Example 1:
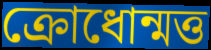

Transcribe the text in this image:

ক্রোধোন্মত্ত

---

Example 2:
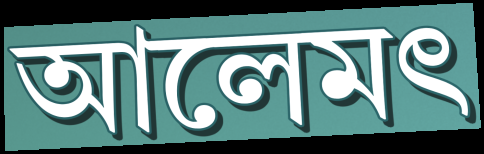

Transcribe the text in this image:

আলেমৎ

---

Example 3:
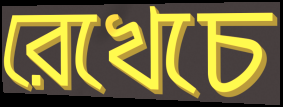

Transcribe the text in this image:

রেখেচে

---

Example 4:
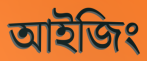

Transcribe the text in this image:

আইজিং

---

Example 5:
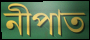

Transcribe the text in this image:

নীপাত